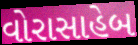
વોરાસાહેબ